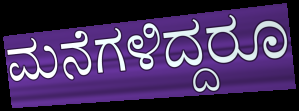
ಮನೆಗಳಿದ್ದರೂ